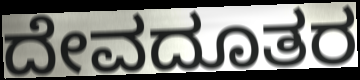
ದೇವದೂತರ